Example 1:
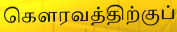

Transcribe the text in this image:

கௌரவத்திற்குப்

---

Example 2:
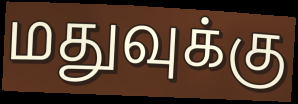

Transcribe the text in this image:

மதுவுக்கு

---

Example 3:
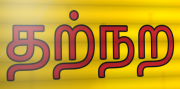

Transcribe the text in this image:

தற்நற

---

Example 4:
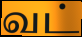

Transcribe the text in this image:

வட்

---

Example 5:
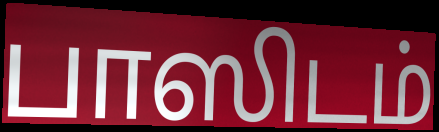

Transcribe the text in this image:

பாஸிடம்